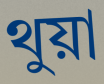
থুয়া